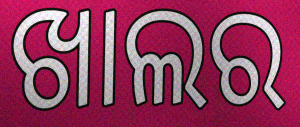
ଖାଲର